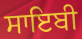
ਸਾਇਬੀ